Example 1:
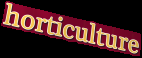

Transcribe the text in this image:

horticulture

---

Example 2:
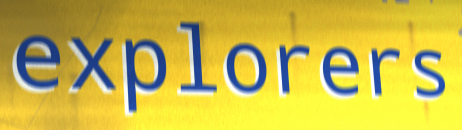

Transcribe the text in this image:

explorers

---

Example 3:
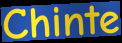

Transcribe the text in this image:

Chinte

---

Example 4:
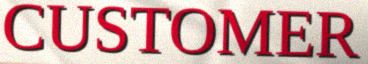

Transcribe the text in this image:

CUSTOMER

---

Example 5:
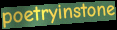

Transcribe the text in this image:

poetryinstone